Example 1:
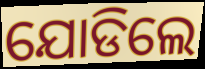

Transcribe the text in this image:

ଯୋଡିଲେ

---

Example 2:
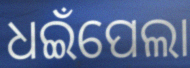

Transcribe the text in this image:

ଧଇଁପେଲା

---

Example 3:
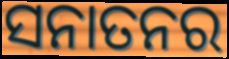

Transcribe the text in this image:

ସନାତନର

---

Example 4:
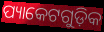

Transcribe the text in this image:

ପ୍ୟାକେଟଗୁଡ଼ିକ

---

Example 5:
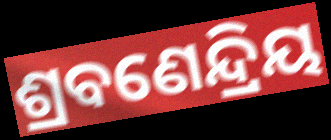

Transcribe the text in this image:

ଶ୍ରବଣେନ୍ଦ୍ରିୟ